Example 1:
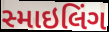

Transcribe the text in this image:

સ્માઇલિંગ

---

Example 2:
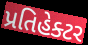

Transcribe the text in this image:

પ્રતિહેક્ટર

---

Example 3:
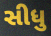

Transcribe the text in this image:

સીધુ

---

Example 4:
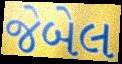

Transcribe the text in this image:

જેબેલ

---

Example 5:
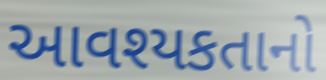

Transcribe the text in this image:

આવશ્યકતાનો